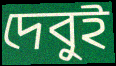
দেবুই